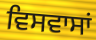
ਵਿਸਵਾਸਾਂ